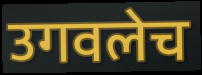
उगवलेच